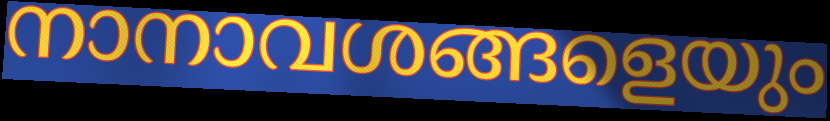
നാനാവശങ്ങളെയും